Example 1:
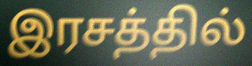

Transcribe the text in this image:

இரசத்தில்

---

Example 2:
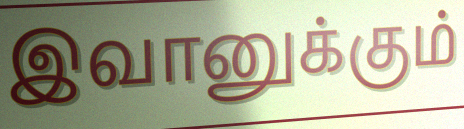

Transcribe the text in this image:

இவானுக்கும்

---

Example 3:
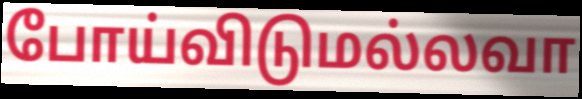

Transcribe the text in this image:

போய்விடுமல்லவா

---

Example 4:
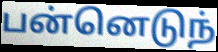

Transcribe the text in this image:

பன்னெடுந்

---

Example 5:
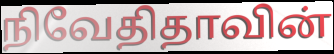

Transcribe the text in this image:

நிவேதிதாவின்